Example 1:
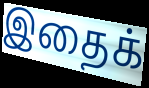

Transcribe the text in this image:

இதைக்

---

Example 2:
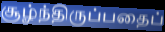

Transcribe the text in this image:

சூழ்ந்திருப்பதைப்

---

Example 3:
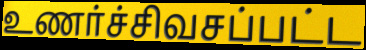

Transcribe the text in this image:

உணர்ச்சிவசப்பட்ட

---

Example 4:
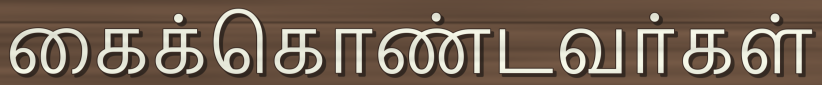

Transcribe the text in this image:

கைக்கொண்டவர்கள்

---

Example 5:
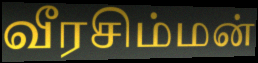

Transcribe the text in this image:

வீரசிம்மன்